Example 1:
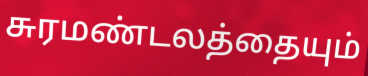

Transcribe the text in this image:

சுரமண்டலத்தையும்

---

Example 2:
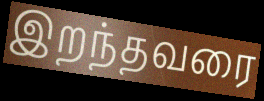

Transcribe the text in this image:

இறந்தவரை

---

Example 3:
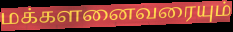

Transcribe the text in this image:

மக்களனைவரையும்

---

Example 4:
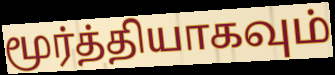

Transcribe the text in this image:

மூர்த்தியாகவும்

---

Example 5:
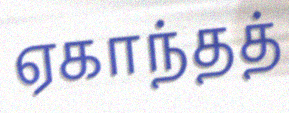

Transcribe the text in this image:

ஏகாந்தத்